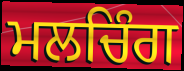
ਮਲਚਿੰਗ